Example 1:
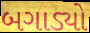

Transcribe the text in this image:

બગાડ્યો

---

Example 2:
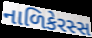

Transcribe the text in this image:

નાળિકેરસ્સ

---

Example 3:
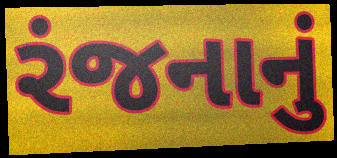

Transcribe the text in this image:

રંજનાનું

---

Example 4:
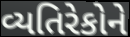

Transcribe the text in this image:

વ્યતિરેકોને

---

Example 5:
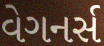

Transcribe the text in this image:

વેગનર્સ